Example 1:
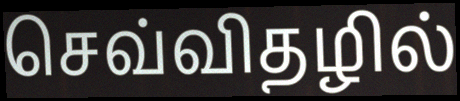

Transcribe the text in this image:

செவ்விதழில்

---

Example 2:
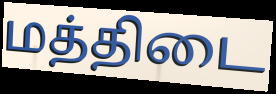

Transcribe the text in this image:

மத்திடை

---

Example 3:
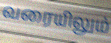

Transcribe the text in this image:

வரையிலும்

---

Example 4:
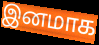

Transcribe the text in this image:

இனமாக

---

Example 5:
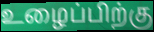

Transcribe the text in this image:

உழைப்பிற்கு